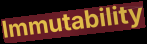
Immutability